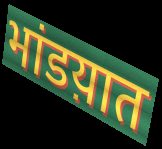
भांडय़ात